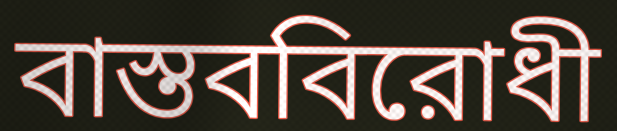
বাস্তববিরোধী